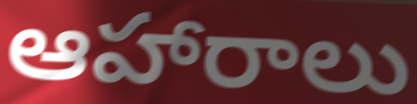
ఆహారాలు